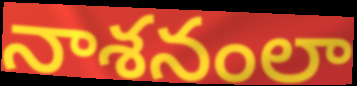
నాశనంలా